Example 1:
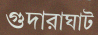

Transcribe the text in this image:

গুদারাঘাট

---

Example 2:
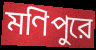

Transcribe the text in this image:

মণিপুরে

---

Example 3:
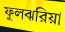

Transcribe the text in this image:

ফুলঝরিয়া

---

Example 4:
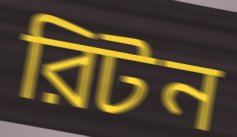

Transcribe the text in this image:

রিটন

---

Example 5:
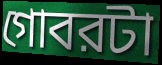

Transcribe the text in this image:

গোবরটা